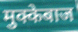
मुक्केबाज